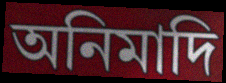
অনিমাদি